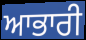
ਆਭਾਰੀ